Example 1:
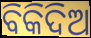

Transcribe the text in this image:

ବିକିଦିଅ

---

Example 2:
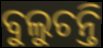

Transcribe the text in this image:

ବୁଲୁଚନ୍ତି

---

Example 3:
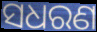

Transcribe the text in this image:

ସଧରଣ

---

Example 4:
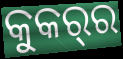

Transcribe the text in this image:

କୁକର୍‌ର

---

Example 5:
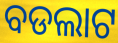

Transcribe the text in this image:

ବଡଲାଟ